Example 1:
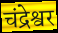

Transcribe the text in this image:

चंद्रेश्वर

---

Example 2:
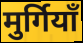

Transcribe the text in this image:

मुर्गियाँ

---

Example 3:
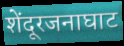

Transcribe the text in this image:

शेंदूरजनाघाट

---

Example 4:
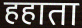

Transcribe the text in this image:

हहाता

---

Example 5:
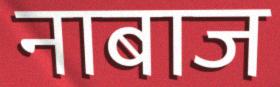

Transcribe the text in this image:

नाबाज